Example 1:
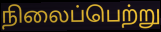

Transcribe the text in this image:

நிலைப்பெற்று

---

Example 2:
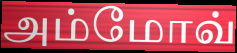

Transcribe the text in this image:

அம்மோவ்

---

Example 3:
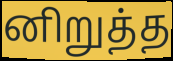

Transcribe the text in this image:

னிறுத்த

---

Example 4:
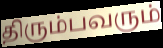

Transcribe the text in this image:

திரும்பவரும்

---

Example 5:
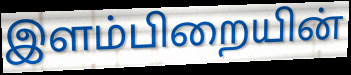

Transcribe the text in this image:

இளம்பிறையின்